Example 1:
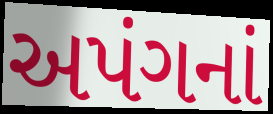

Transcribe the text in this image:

અપંગનાં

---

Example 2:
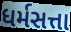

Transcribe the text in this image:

ધર્મસત્તા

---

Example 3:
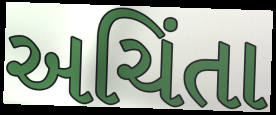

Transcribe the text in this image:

અચિંતા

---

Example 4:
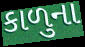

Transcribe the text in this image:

કાળુના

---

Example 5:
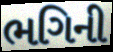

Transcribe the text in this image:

ભગિની